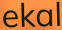
ekal